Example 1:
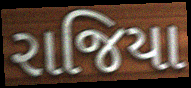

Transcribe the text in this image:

રાજિયા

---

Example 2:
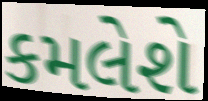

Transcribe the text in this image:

કમલેશે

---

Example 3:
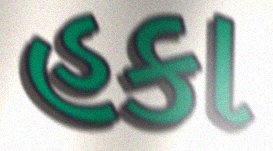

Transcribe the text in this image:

હકા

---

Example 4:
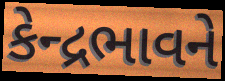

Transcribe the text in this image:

કેન્દ્રભાવને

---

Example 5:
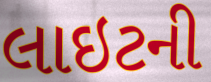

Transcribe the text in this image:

લાઇટની